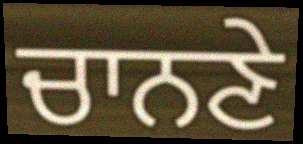
ਚਾਨਣੇ